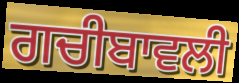
ਗਚੀਬਾਵਲੀ